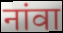
नांवा